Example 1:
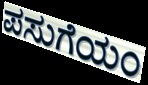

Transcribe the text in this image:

ಪಸುಗೆಯಂ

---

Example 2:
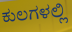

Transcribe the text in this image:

ಕುಲಗಳಲ್ಲಿ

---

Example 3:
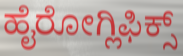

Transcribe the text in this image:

ಹೈರೋಗ್ಲಿಫಿಕ್ಸ್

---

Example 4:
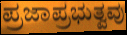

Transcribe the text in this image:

ಪ್ರಜಾಪ್ರಭುತ್ವವು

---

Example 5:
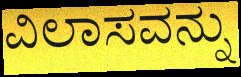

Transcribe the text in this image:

ವಿಲಾಸವನ್ನು